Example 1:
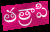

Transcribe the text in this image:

తత్రాపి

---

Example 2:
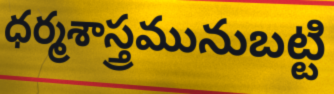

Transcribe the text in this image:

ధర్మశాస్త్రమునుబట్టి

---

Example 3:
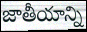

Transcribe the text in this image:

జాతీయాన్ని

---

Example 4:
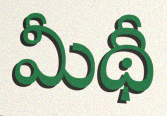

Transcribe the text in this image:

మీథీ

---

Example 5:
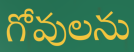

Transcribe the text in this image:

గోవులను